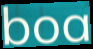
boa